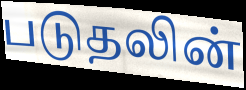
படுதலின்